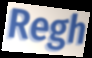
Regh